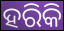
ହରିକି